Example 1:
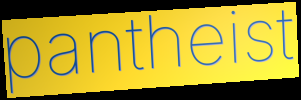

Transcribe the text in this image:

pantheist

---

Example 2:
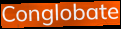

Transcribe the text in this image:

Conglobate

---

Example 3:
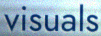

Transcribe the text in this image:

visuals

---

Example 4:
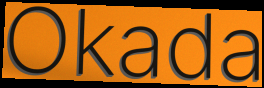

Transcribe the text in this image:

Okada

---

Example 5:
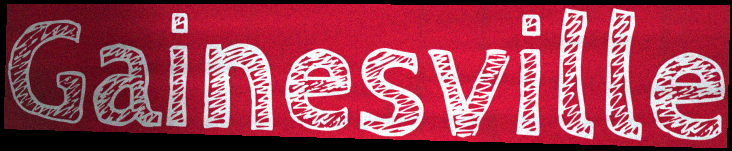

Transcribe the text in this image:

Gainesville